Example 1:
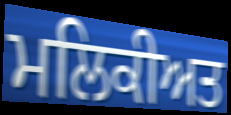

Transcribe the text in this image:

ਮਲਿਕੀਅਤ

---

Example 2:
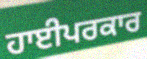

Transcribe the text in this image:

ਹਾਈਪਰਕਾਰ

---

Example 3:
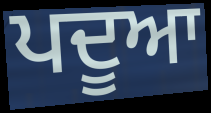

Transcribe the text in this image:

ਪਦੂਆ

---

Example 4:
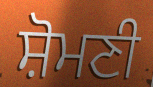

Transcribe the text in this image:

ਸ਼ੋਮਣੀ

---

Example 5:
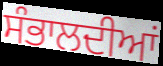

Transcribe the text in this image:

ਸੰਭਾਲਦੀਆਂ